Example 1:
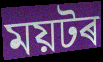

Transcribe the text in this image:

ময়টৰ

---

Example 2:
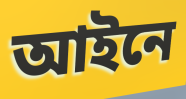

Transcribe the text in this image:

আইনে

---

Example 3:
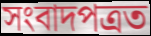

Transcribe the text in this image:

সংবাদপত্ৰত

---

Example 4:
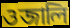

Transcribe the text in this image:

ওজালি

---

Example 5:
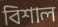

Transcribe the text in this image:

বিশাল